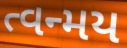
ત્વન્મય